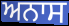
ਅਨਾਸ